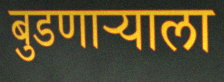
बुडणाऱ्याला